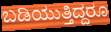
ಬಡಿಯುತ್ತಿದ್ದರೂ